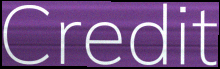
Credit